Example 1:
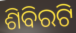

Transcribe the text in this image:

ଶିବିରଟି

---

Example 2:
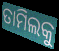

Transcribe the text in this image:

ତାମିଲକୁ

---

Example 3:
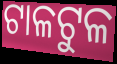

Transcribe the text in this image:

ଟାଳଟୁଳ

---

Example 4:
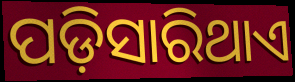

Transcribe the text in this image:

ପଡ଼ିସାରିଥାଏ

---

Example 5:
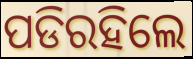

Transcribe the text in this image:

ପଡିରହିଲେ